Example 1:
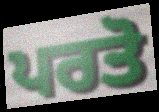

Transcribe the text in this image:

ਪਰਤੋ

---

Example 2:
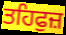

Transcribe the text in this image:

ਤਹਿਫੁਜ਼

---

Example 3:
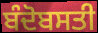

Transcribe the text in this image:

ਬੰਦੋਬਸਤੀ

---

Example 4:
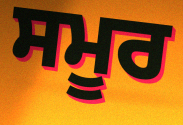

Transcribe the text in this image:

ਸਮੂਰ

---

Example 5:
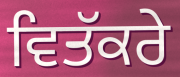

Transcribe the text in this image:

ਵਿਤੱਕਰੇ